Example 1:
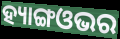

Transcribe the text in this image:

ହ୍ୟାଙ୍ଗଓଭର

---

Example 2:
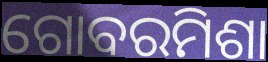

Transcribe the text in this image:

ଗୋବରମିଶା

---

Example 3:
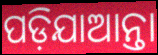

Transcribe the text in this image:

ପଡ଼ିଯାଆନ୍ତା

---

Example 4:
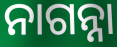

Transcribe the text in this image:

ନାଗନ୍ନା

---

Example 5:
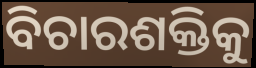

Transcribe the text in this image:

ବିଚାରଶକ୍ତିକୁ